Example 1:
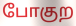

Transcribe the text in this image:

போகுற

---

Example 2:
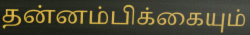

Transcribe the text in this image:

தன்னம்பிக்கையும்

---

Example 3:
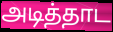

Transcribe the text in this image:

அடித்தாட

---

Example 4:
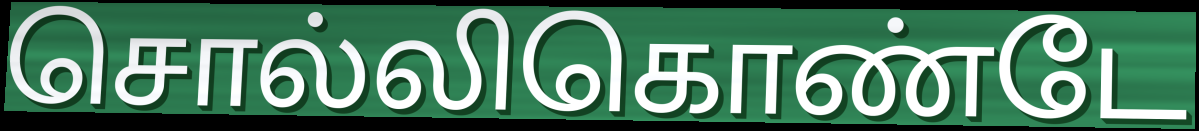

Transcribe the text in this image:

சொல்லிகொண்டே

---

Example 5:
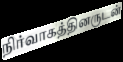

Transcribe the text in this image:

நிர்வாகத்தினருடன்